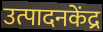
उत्पादनकेंद्र